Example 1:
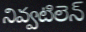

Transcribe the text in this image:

నివ్వటిలెన్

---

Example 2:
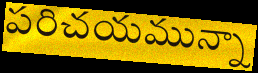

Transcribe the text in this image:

పరిచయమున్నా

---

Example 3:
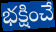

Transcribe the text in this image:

భక్షించే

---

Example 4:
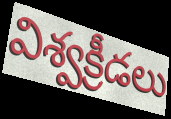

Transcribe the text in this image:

విశ్వక్రీడలు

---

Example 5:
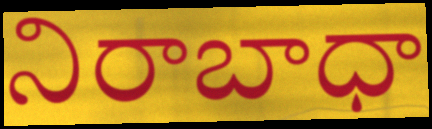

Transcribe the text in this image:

నిరాబాధా